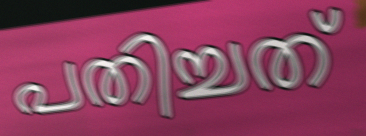
പതിച്ചത്